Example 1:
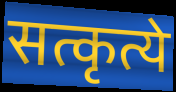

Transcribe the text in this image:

सत्कृत्ये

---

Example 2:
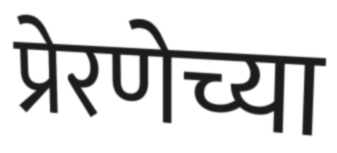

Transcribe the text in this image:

प्रेरणेच्या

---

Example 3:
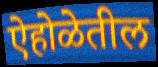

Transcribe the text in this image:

ऐहोळेतील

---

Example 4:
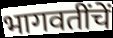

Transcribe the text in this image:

भागवतींचें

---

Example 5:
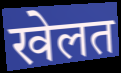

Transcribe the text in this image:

खेलत